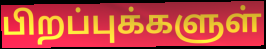
பிறப்புக்களுள்